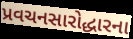
પ્રવચનસારોદ્ધારના